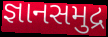
જ્ઞાનસમુદ્ર